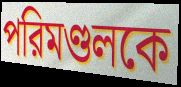
পরিমণ্ডলকে